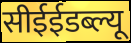
सीईईडब्ल्यू